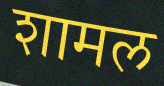
शामल